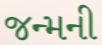
જન્મની